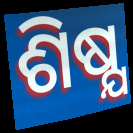
ଶିଷ୍ଯ